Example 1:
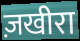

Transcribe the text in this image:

ज़खीरा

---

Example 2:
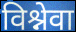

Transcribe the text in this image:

विश्नेवा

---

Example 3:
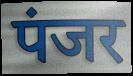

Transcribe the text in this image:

पंजर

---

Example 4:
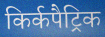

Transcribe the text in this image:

किर्कपैट्रिक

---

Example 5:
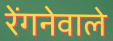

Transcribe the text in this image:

रेंगनेवाले